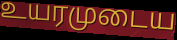
உயரமுடைய